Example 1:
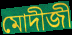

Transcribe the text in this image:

মোদীজী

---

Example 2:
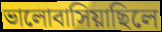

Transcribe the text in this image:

ভালোবাসিয়াছিলে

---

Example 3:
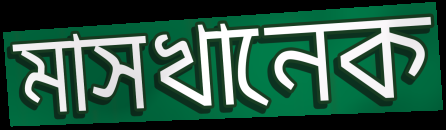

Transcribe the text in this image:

মাসখানেক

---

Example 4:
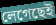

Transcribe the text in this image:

লেগেছেই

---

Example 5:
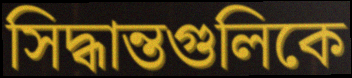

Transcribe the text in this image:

সিদ্ধান্তগুলিকে